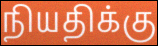
நியதிக்கு